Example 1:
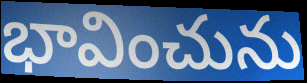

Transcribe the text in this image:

భావించును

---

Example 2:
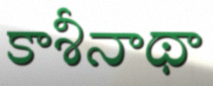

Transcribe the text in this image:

కాశీనాథా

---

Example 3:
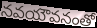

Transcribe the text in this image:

నవయౌవనంతో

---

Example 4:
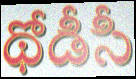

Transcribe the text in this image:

థోడీసీ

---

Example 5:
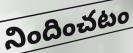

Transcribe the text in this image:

నిందించటం